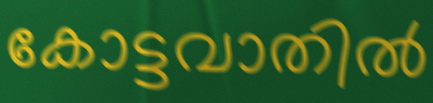
കോട്ടവാതിൽ